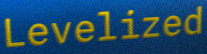
Levelized